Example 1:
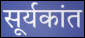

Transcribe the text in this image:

सूर्यकांत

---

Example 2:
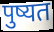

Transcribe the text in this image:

पुष्यत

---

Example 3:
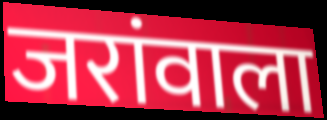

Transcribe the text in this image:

जरांवाला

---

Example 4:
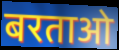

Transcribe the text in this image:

बरताओ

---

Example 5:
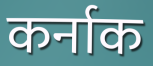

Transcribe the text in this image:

कर्नाक